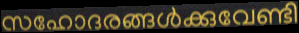
സഹോദരങ്ങൾക്കുവേണ്ടി